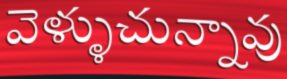
వెళ్ళుచున్నావు